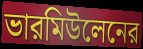
ভারমিউলেনের